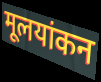
मूलयांकन